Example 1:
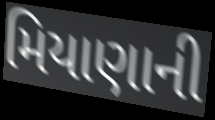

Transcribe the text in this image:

મિયાણાની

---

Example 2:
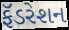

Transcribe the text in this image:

ફૅડરેશન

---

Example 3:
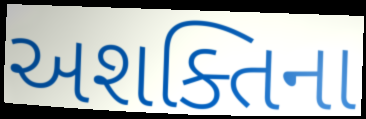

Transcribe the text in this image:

અશક્તિના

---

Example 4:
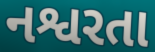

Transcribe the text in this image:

નશ્વરતા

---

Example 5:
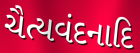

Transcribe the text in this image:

ચૈત્યવંદનાદિ